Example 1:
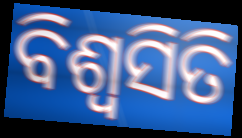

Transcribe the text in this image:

ବିଶ୍ଵସିତି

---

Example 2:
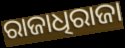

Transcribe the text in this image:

ରାଜାଧିରାଜା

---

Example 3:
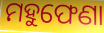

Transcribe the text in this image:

ମହୁଫେଣା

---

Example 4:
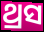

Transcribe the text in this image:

ଥ୍ରସ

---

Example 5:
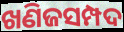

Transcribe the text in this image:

ଖଣିଜସମ୍ପଦ